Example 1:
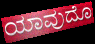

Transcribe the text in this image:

ಯಾವುದೊ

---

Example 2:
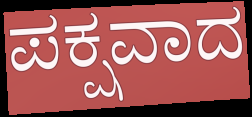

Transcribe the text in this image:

ಪಕ್ಷವಾದ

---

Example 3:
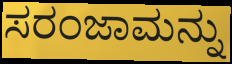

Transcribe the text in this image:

ಸರಂಜಾಮನ್ನು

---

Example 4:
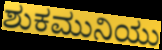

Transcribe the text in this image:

ಶುಕಮುನಿಯು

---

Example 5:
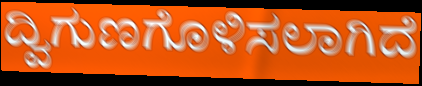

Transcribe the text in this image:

ದ್ವಿಗುಣಗೊಳಿಸಲಾಗಿದೆ